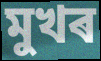
মুখৰ